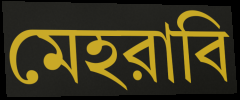
মেহরাবি